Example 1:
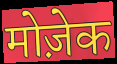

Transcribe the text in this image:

मोज़ेक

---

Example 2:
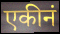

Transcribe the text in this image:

एकीनं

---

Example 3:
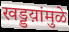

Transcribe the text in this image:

खड्डय़ांमुळे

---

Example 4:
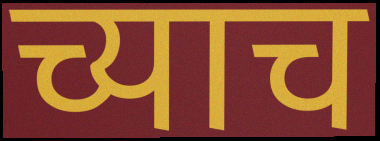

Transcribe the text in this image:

च्याच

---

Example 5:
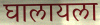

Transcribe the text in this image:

घालायला